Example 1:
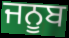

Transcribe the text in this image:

ਜਨੂਬ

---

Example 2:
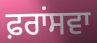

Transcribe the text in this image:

ਫ਼ਰਾਂਸਵਾ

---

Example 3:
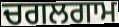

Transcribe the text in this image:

ਚਗਲਗਾਮ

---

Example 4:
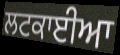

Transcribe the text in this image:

ਲਟਕਾਈਆ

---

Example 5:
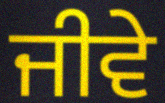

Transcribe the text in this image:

ਜੀਵੇ